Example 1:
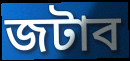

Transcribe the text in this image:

জটাব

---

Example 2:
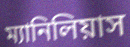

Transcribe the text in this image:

ম্যানিলিয়াস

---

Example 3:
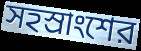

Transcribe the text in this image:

সহস্রাংশের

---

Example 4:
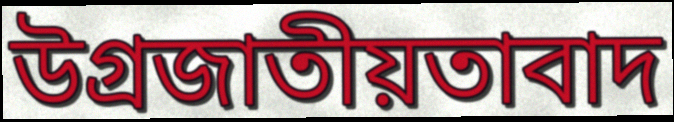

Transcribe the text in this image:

উগ্রজাতীয়তাবাদ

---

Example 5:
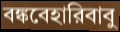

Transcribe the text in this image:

বঙ্কবেহারিবাবু